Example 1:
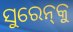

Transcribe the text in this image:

ସୁରେନ୍‌କୁ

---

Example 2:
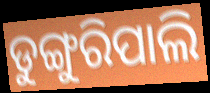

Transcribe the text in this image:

ଡୁଙ୍ଗୁରିପାଲି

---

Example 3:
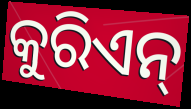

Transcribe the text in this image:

କୁରିଏନ୍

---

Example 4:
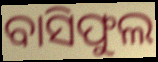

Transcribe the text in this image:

ବାସିଫୁଲ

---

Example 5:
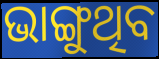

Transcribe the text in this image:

ଭାଙ୍ଗୁଥିବ